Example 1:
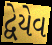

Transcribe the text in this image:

દ્વેયેવ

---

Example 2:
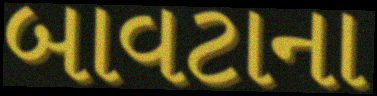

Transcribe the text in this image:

બાવટાના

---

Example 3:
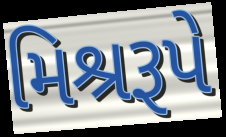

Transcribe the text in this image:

મિશ્રરૂપે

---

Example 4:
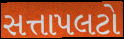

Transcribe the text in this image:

સત્તાપલટો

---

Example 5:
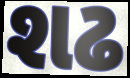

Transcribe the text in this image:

શઢ